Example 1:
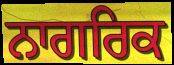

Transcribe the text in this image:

ਨਾਗਰਿਕ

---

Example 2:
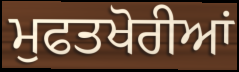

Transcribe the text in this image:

ਮੁਫਤਖੋਰੀਆਂ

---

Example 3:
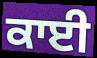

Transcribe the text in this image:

ਕਾਈ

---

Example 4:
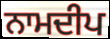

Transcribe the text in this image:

ਨਾਮਦੀਪ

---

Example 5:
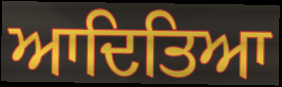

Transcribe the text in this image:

ਆਦਿਤਿਆ